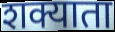
शक्याता